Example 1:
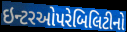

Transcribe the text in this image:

ઇન્ટરઓપરેબિલિટીનો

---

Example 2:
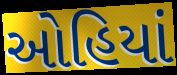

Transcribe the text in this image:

ઓહિયાં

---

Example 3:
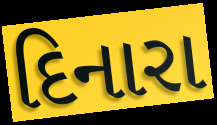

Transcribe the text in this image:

દિનારા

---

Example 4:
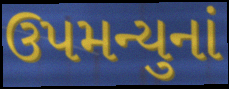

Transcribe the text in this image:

ઉપમન્યુનાં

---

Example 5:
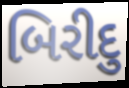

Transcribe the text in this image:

બિરીદુ